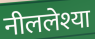
नीललेश्या